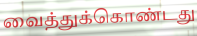
வைத்துக்கொண்டது